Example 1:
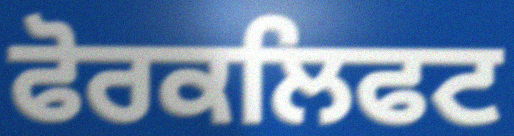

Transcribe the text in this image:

ਫੋਰਕਲਿਫਟ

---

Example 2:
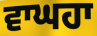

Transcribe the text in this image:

ਵਾਘਹਾ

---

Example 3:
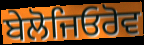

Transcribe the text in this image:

ਬੇਲੋਜਿਓਰੋਵ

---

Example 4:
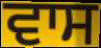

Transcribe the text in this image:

ਵਾਸ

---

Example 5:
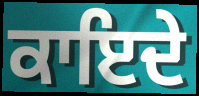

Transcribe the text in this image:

ਕਾਇਦੇ